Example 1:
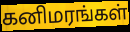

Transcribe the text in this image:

கனிமரங்கள்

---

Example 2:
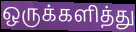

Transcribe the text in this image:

ஒருக்களித்து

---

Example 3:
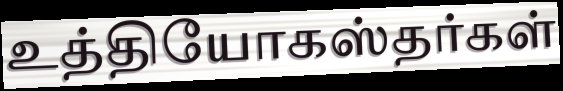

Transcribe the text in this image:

உத்தியோகஸ்தர்கள்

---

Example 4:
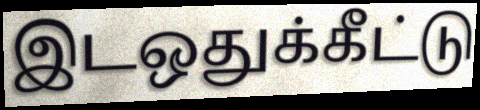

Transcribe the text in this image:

இடஒதுக்கீட்டு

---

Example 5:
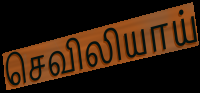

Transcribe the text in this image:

செவிலியாய்